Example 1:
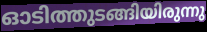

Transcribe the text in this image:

ഓടിത്തുടങ്ങിയിരുന്നു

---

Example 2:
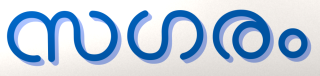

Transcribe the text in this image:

സഗരം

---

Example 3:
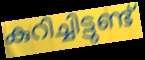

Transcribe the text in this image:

കുറിച്ചിട്ടുണ്ട്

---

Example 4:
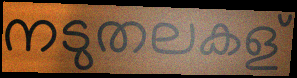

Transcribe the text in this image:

നടുതലകള്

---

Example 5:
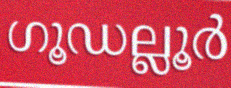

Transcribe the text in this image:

ഗൂഡല്ലൂർ